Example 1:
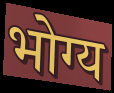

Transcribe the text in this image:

भोग्य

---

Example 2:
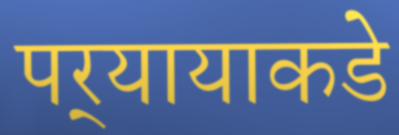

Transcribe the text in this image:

पर्यायाकडे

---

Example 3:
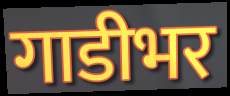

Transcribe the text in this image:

गाडीभर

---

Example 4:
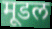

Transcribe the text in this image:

मूडल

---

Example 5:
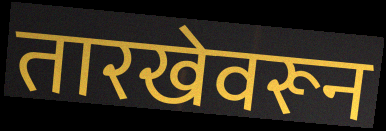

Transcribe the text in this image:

तारखेवरून